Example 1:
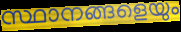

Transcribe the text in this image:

സ്ഥാനങ്ങളെയും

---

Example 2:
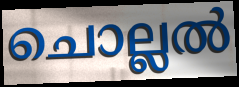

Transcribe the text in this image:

ചൊല്ലൽ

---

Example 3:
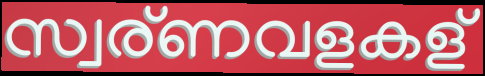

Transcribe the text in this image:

സ്വര്ണവളകള്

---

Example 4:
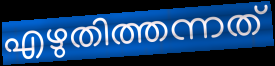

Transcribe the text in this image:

എഴുതിത്തന്നത്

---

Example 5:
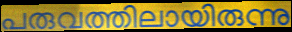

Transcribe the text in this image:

പരുവത്തിലായിരുന്നു